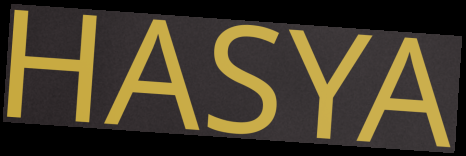
HASYA